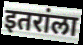
इतरांला